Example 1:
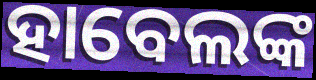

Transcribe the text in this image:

ହାବେଲଙ୍କ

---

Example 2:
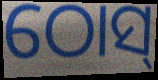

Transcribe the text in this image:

ଠୋସ୍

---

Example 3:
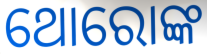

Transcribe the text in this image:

ଥୋରୋଙ୍କ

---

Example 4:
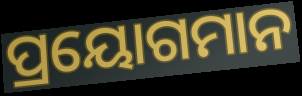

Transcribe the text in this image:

ପ୍ରୟୋଗମାନ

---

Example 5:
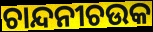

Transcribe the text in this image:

ଚାନ୍ଦନୀଚଉକ